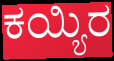
ಕಯ್ಯಿರ